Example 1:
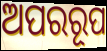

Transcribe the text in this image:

ଅପରରୂପ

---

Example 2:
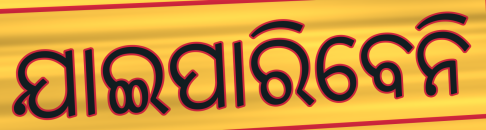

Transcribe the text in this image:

ଯାଇପାରିବେନି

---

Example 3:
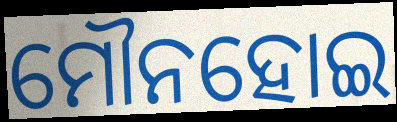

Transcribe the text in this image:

ମୌନହୋଇ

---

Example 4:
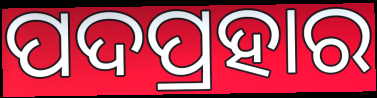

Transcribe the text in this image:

ପଦପ୍ରହାର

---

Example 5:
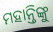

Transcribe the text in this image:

ମହାନ୍ତିଙ୍କୁ